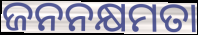
ଜନନକ୍ଷମତା